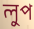
লুপ